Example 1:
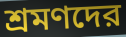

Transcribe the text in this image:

শ্রমণদের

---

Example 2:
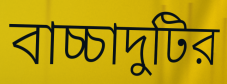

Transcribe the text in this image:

বাচ্চাদুটির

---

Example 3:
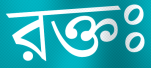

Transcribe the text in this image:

রক্তঃ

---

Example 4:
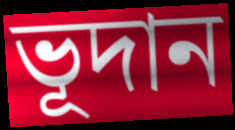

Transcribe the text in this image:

ভূদান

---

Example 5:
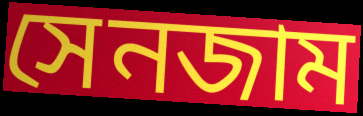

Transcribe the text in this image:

সেনজাম